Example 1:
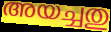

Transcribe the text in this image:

അയച്ചതു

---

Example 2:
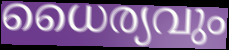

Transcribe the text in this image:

ധൈര്യവും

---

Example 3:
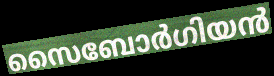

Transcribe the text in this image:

സൈബോർഗിയൻ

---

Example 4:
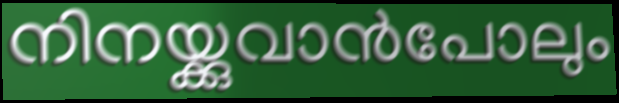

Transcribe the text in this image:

നിനയ്ക്കുവാൻപോലും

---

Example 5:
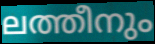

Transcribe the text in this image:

ലത്തീനും